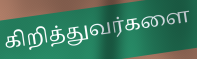
கிறித்துவர்களை